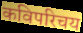
कविपरिचय